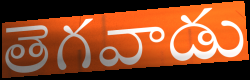
తెగవాడు